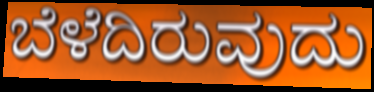
ಬೆಳೆದಿರುವುದು